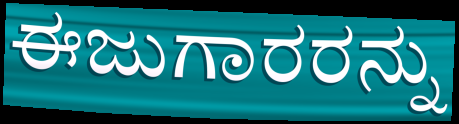
ಈಜುಗಾರರನ್ನು